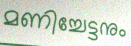
മണിച്ചേട്ടനും